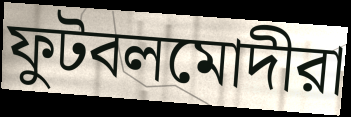
ফুটবলমোদীরা